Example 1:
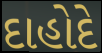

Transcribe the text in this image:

દાહોદે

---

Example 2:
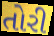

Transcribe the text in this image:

તોરી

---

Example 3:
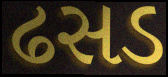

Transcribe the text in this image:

ઢસડ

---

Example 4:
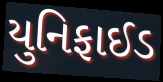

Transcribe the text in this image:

યુનિફાઈડ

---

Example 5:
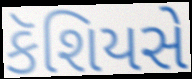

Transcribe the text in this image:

કૅશિયસે